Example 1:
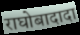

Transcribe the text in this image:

राघोबादादा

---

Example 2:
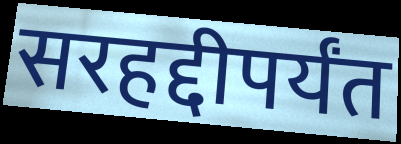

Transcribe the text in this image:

सरहद्दीपर्यंत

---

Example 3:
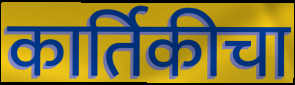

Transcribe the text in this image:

कार्तिकीचा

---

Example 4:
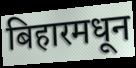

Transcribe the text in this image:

बिहारमधून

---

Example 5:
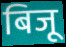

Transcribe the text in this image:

बिजू